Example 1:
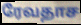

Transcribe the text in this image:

ரேவதாச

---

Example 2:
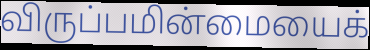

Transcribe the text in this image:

விருப்பமின்மையைக்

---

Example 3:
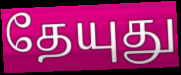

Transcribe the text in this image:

தேயுது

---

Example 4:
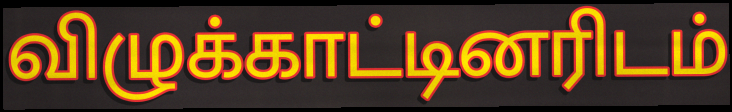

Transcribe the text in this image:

விழுக்காட்டினரிடம்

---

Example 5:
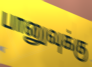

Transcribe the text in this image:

பானுவுக்கு